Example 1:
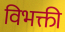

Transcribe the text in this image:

विभक्ती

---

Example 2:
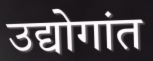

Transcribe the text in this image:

उद्योगांत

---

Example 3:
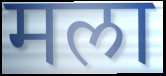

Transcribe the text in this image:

मला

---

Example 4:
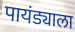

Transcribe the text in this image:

पायंड्याला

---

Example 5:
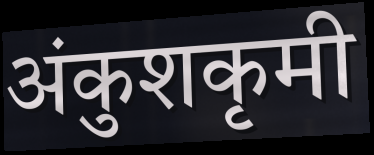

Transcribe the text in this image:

अंकुशकृमी